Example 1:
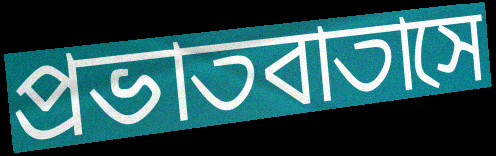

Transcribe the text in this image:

প্রভাতবাতাসে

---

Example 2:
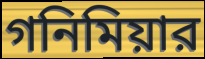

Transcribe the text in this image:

গনিমিয়ার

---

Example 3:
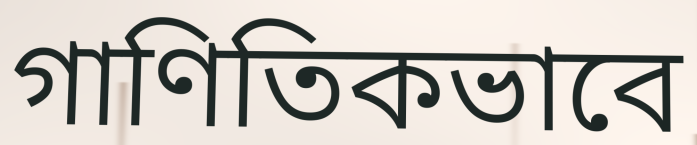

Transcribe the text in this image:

গাণিতিকভাবে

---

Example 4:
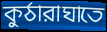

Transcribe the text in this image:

কুঠারাঘাতে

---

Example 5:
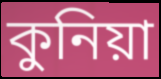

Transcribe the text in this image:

কুনিয়া